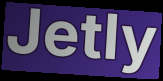
Jetly